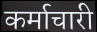
कर्माचारी